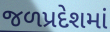
જળપ્રદેશમાં